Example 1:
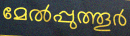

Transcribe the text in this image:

മേൽപ്പുത്തൂർ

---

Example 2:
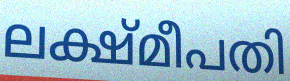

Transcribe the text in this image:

ലക്ഷ്മീപതി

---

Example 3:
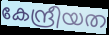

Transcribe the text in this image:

കേന്ദ്രീയത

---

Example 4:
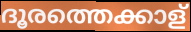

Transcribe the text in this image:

ദൂരത്തെക്കാള്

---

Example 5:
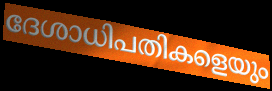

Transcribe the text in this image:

ദേശാധിപതികളെയും